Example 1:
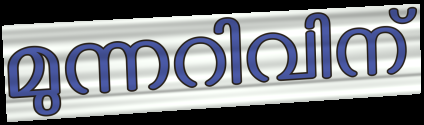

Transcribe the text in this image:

മുന്നറിവിന്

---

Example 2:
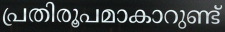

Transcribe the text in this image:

പ്രതിരൂപമാകാറുണ്ട്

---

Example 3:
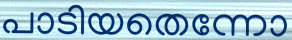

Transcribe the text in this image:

പാടിയതെന്നോ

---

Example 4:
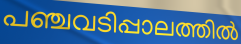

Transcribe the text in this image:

പഞ്ചവടിപ്പാലത്തിൽ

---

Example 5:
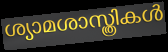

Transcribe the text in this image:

ശ്യാമശാസ്ത്രികൾ